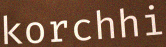
korchhi